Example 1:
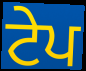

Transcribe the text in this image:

ਟੇਪ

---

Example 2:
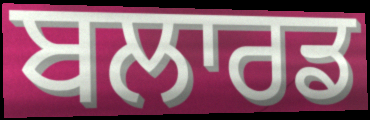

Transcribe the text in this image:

ਬਲਾਰਡ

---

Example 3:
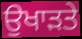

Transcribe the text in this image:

ਉਖਾੜਤੇ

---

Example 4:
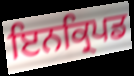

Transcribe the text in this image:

ਇਨਕ੍ਰਿਪਡ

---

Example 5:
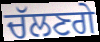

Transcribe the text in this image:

ਚੱਲਣਗੇ